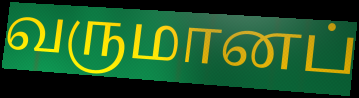
வருமானப்